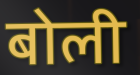
बोली